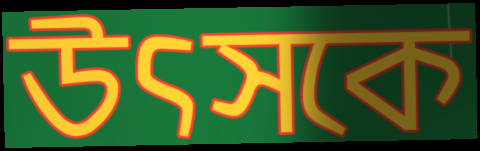
উৎসকে